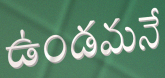
ఉండమనే